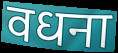
वधना